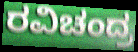
ರವಿಚಂದ್ರ